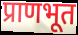
प्राणभूत